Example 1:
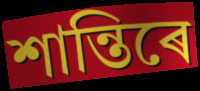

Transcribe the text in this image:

শান্তিৰে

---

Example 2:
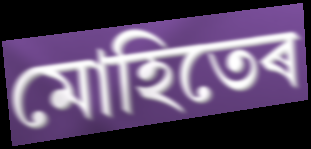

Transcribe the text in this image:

মোহিতেৰ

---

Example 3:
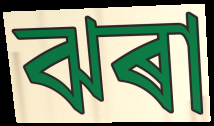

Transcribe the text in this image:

ঝৰা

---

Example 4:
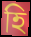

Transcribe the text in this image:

হি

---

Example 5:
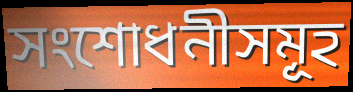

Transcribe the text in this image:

সংশোধনীসমূহ